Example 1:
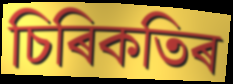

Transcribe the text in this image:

চিৰিকতিৰ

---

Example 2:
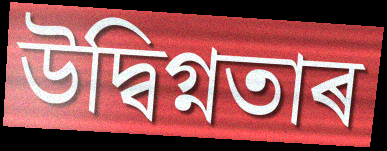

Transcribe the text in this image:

উদ্বিগ্নতাৰ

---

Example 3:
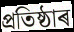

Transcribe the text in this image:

প্ৰতিষ্ঠাৰ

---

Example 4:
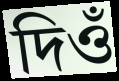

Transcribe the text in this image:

দিওঁ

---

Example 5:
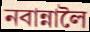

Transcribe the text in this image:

নবান্নালৈ